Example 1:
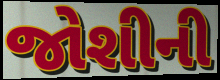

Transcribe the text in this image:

જોશીની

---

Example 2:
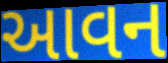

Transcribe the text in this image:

આવન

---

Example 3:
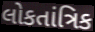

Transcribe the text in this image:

લોકતાંત્રિક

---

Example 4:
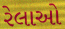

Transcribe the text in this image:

રેલાઓ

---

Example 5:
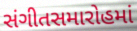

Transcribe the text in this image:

સંગીતસમારોહમાં